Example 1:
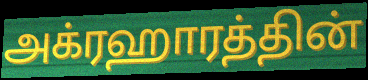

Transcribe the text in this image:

அக்ரஹாரத்தின்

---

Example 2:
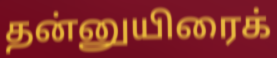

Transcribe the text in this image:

தன்னுயிரைக்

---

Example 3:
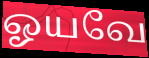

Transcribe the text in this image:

ஓயவே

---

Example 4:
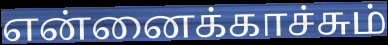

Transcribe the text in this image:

என்னைக்காச்சும்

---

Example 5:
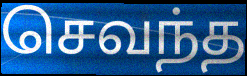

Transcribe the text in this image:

செவந்த